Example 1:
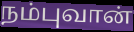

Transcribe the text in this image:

நம்புவான்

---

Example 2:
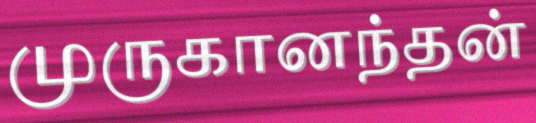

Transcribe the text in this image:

முருகானந்தன்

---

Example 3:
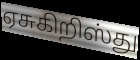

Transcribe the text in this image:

ஏசுகிறிஸ்து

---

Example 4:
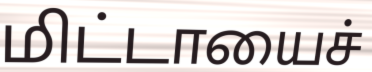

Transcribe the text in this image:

மிட்டாயைச்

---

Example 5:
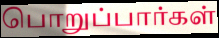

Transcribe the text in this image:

பொறுப்பார்கள்